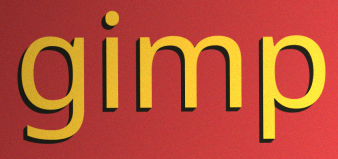
gimp